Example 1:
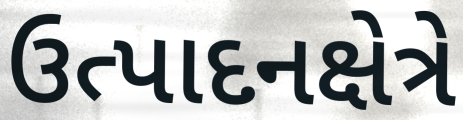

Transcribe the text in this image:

ઉત્પાદનક્ષેત્રે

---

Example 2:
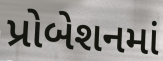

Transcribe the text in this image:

પ્રોબેશનમાં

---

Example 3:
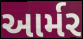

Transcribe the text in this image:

આર્મર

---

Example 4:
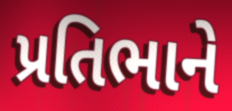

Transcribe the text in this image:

પ્રતિભાને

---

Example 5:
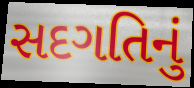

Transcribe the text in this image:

સદગતિનું